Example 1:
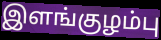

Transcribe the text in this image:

இளங்குழம்பு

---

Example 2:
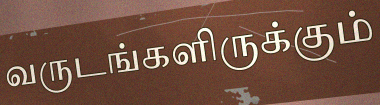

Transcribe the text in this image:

வருடங்களிருக்கும்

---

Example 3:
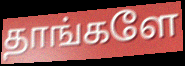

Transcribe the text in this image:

தாங்களே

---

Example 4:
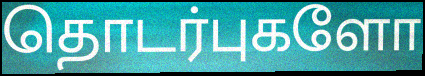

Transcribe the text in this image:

தொடர்புகளோ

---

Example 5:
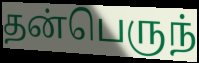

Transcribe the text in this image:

தன்பெருந்